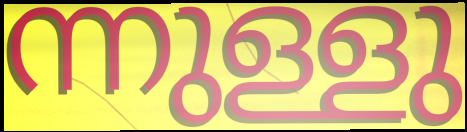
ന്നുള്ളു